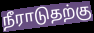
நீராடுதற்கு